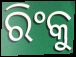
ରିଂକୁ